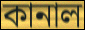
কানাল